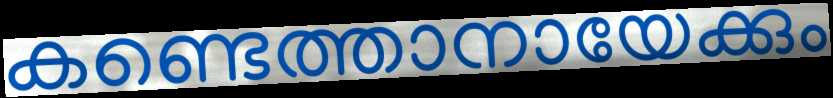
കണ്ടെത്താനായേക്കും